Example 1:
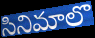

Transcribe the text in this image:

సినిమాలొ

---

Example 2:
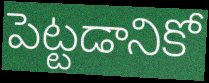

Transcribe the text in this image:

పెట్టడానికో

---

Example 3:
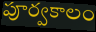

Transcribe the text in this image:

పూర్వకాలం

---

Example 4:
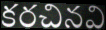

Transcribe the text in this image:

కరచినవి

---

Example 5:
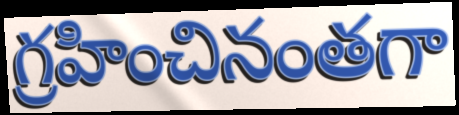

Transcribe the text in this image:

గ్రహించినంతగా